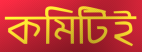
কমিটিই